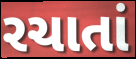
રચાતાં